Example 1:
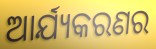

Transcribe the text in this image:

ଆର୍ଯ୍ୟକରଣର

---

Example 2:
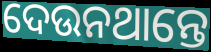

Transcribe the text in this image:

ଦେଉନଥାନ୍ତେ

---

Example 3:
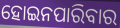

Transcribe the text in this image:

ହୋଇନପାରିବାର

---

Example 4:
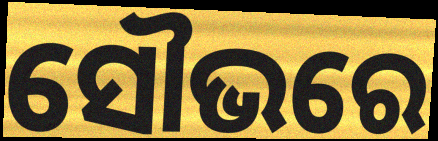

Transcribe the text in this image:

ସୌଭରେ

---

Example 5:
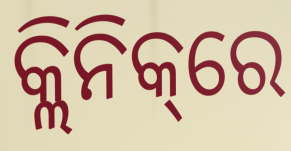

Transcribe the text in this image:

କ୍ଲିନିକ୍‌ରେ